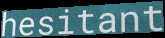
hesitant